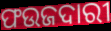
ଫଉଜଦାରୀ